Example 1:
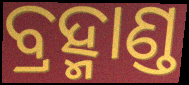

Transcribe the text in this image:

ବ୍ରହ୍ମାଣ୍ଡ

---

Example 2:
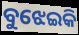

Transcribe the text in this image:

ବୁଝେଇକି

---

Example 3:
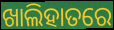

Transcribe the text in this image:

ଖାଲିହାତରେ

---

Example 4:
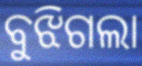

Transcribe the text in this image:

ବୁଝିଗଲା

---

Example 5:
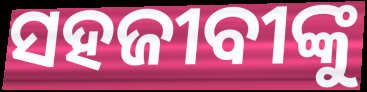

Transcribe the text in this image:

ସହଜୀବୀଙ୍କୁ